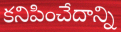
కనిపించేదాన్ని